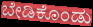
ಬೇಡಿಕೊಂಡು